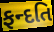
ફન્દતિ